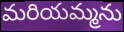
మరియమ్మను